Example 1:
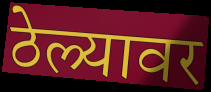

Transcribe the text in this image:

ठेल्यावर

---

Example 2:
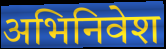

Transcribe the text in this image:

अभिनिवेश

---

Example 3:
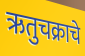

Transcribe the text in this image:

ऋतुचक्राचे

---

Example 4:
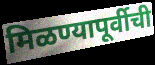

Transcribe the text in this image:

मिळण्यापूर्वीची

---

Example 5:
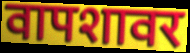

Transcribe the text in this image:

वापशावर